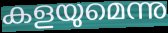
കളയുമെന്നു